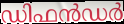
ഡിഫൻഡർ